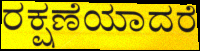
ರಕ್ಷಣೆಯಾದರೆ